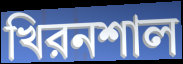
খিরনশাল